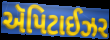
ઍપિટાઈઝર